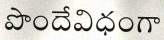
పొందేవిధంగా